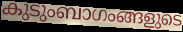
കുടുംബാഗംങ്ങളുടെ